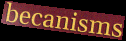
becanisms